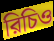
রিচিও